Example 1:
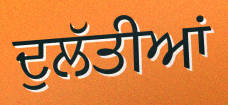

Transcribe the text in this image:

ਦੁਲੱਤੀਆਂ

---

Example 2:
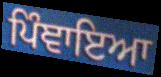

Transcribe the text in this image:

ਪਿੰਞਾਇਆ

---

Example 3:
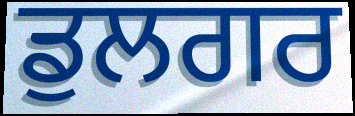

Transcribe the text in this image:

ਡੁਲਗਰ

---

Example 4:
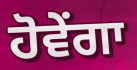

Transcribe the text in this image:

ਹੋਵੇਂਗਾ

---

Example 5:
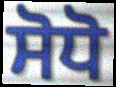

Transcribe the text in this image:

ਸੋਧੋ